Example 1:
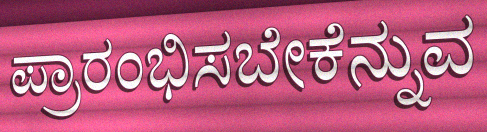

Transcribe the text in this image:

ಪ್ರಾರಂಭಿಸಬೇಕೆನ್ನುವ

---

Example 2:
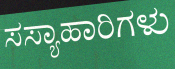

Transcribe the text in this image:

ಸಸ್ಯಾಹಾರಿಗಳು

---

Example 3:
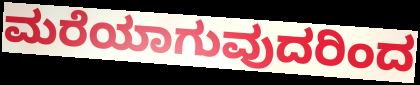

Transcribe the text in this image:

ಮರೆಯಾಗುವುದರಿಂದ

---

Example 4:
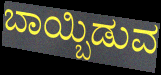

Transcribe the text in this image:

ಬಾಯ್ಬಿಡುವ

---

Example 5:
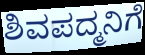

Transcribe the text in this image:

ಶಿವಪದ್ಮನಿಗೆ